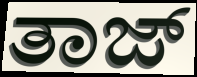
ತಾಜ್